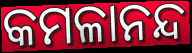
କମଳାନନ୍ଦ